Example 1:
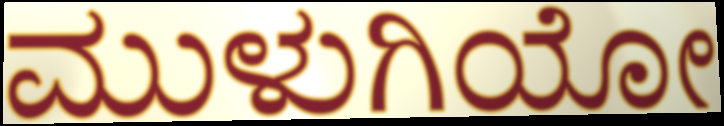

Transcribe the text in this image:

ಮುಳುಗಿಯೋ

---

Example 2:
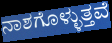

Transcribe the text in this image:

ನಾಶಗೊಳ್ಳುತ್ತವೆ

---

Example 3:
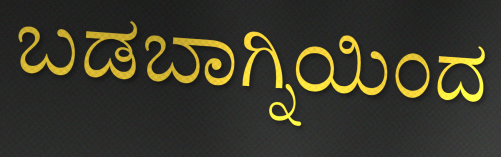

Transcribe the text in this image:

ಬಡಬಾಗ್ನಿಯಿಂದ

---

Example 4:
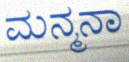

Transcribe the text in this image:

ಮನ್ಮನಾ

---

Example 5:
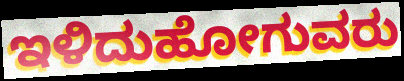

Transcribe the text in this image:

ಇಳಿದುಹೋಗುವರು